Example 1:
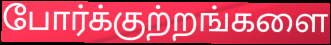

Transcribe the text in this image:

போர்க்குற்றங்களை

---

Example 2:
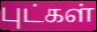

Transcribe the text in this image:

புட்கள்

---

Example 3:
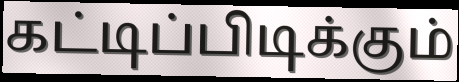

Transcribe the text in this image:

கட்டிப்பிடிக்கும்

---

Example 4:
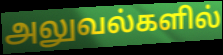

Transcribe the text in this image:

அலுவல்களில்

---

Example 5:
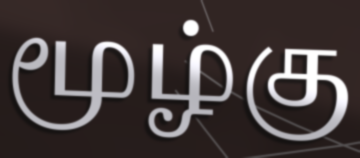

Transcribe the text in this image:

மூழ்கு